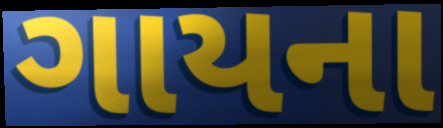
ગાયના